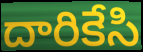
దారికేసి